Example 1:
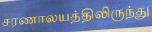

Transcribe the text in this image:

சரணாலயத்திலிருந்து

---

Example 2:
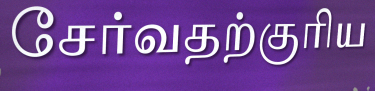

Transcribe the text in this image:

சேர்வதற்குரிய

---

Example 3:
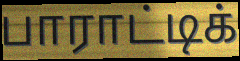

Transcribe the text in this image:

பாராட்டிக்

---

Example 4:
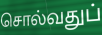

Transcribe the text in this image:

சொல்வதுப்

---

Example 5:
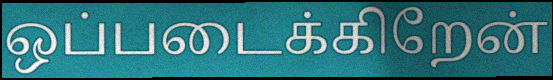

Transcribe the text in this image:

ஒப்படைக்கிறேன்